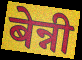
बेन्नी